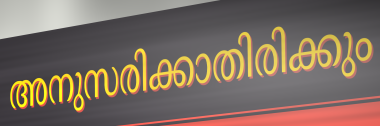
അനുസരിക്കാതിരിക്കും